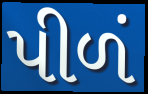
પીળં